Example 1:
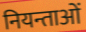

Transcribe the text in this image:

नियन्ताओं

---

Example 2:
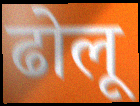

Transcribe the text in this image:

ढोलू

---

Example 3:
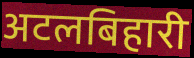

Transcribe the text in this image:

अटलबिहारी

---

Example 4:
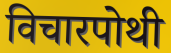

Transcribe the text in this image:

विचारपोथी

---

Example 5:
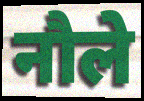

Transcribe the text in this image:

नौले